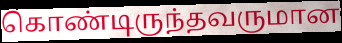
கொண்டிருந்தவருமான